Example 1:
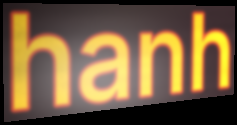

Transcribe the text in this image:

hanh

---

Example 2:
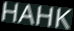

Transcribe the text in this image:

HAHK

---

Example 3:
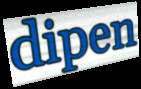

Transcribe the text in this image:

dipen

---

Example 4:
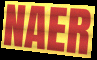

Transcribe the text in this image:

NAER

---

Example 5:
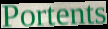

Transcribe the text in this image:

Portents